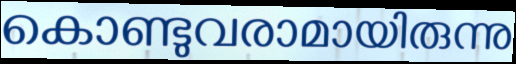
കൊണ്ടുവരാമായിരുന്നു